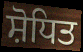
ਸ਼ੋਧਿਤ